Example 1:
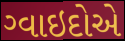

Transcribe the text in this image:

ગ્વાઇદોએ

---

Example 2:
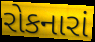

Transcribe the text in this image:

રોકનારાં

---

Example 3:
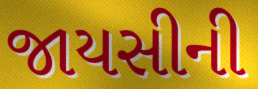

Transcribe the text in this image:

જાયસીની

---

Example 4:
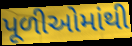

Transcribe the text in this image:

પૂળીઓમાંથી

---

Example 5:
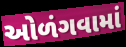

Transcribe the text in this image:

ઓળંગવામાં